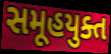
સમૂહયુક્ત